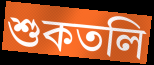
শুকতলি